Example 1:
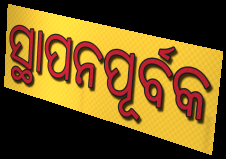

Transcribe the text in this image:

ସ୍ଥାପନପୂର୍ବକ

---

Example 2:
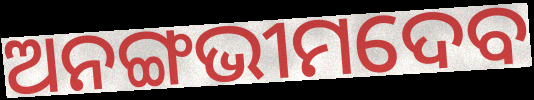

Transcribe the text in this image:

ଅନଙ୍ଗଭୀମଦେବ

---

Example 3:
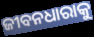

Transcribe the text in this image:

ଜୀବନଧାରାକୁ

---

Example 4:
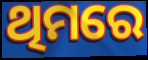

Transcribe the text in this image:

ଥିମରେ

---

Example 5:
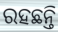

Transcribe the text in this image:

ରହଛନ୍ତି